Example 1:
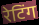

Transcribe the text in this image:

रेटिंग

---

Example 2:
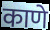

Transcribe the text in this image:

काणे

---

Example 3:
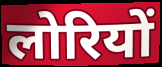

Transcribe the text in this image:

लोरियों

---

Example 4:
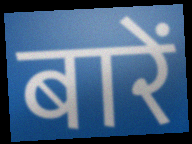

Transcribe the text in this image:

बारें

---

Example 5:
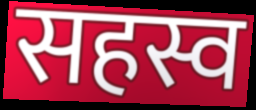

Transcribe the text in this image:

सहस्व